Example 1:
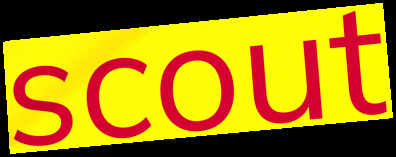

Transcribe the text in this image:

scout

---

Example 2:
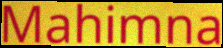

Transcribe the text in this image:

Mahimna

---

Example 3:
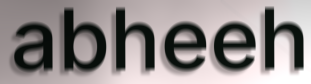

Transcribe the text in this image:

abheeh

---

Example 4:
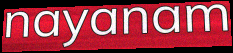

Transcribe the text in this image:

nayanam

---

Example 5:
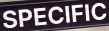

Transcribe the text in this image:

SPECIFIC